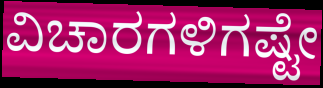
ವಿಚಾರಗಳಿಗಷ್ಟೇ